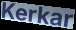
Kerkar